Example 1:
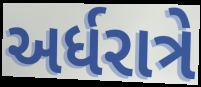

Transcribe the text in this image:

અર્ધરાત્રે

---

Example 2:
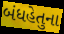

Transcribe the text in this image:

બંધહેતુના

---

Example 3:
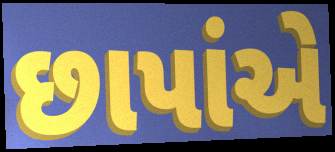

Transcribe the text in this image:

છાપાંએ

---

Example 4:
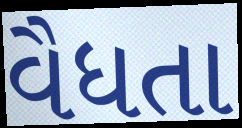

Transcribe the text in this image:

વૈધતા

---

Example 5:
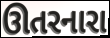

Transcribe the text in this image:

ઊતરનારા